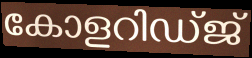
കോളറിഡ്ജ്